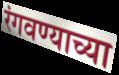
रंगवण्याच्या